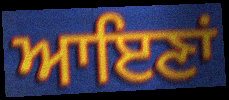
ਆਇਣਾਂ